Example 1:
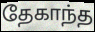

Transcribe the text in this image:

தேகாந்த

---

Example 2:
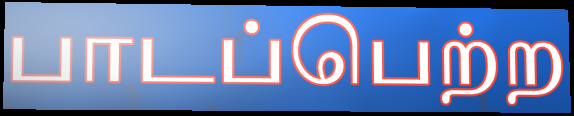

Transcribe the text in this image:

பாடப்பெற்ற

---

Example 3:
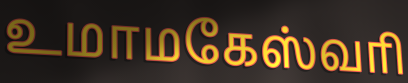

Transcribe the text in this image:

உமாமகேஸ்வரி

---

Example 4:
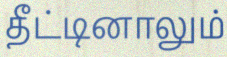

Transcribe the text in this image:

தீட்டினாலும்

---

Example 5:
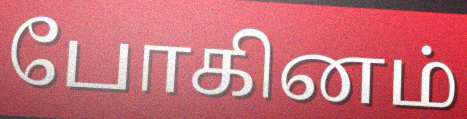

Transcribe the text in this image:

போகினம்